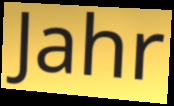
Jahr